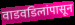
वाडवडिलांपासून